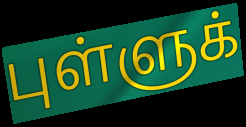
புள்ளுக்